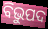
ବିଭୁପଦ